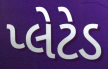
પ્લેટેડ